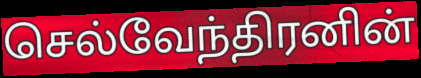
செல்வேந்திரனின்